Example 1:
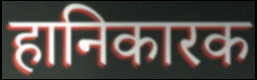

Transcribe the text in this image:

हानिकारक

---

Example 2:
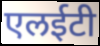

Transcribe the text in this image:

एलईटी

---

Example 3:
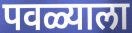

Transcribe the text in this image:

पवळ्याला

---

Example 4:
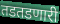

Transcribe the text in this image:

तडतडणारी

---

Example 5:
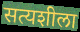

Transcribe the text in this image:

सत्यशीला